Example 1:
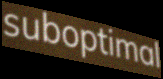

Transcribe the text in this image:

suboptimal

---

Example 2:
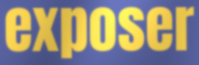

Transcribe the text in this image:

exposer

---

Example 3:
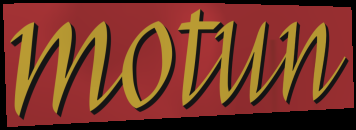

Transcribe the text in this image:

motun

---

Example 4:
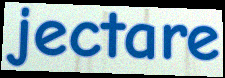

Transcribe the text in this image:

jectare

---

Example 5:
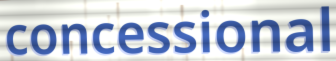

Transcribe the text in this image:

concessional